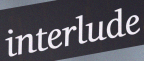
interlude